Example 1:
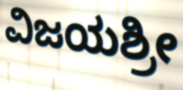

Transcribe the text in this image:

ವಿಜಯಶ್ರೀ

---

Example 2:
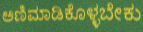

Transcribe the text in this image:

ಅಣಿಮಾಡಿಕೊಳ್ಳಬೇಕು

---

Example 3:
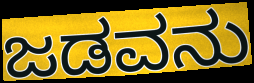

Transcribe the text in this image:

ಜಡವನು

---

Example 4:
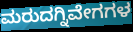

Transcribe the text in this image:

ಮರುದಗ್ನಿವೇಗಗಳ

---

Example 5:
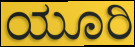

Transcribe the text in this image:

ಯೂರಿ